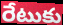
రేటుకు